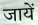
जायें